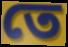
তে